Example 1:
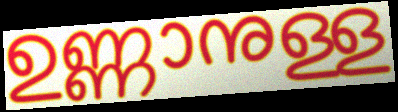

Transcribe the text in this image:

ഉണ്ണാനുള്ള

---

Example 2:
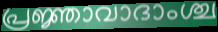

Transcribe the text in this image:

പ്രജ്ഞാവാദാംശ്ച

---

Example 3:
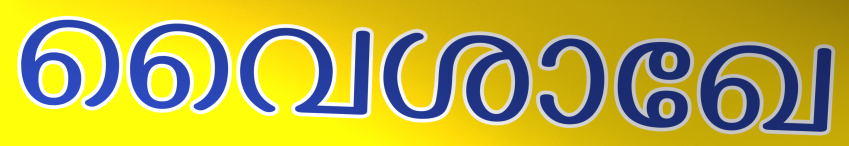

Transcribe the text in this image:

വൈശാഖേ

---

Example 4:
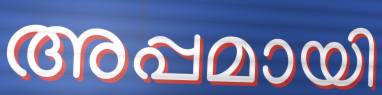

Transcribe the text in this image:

അപ്പമായി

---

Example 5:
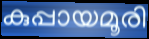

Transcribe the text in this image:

കുപ്പായമൂരി